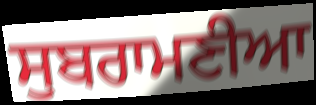
ਸੁਬਰਾਮਣੀਆ